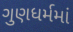
ગુણધર્મમાં